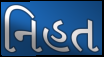
નિહત